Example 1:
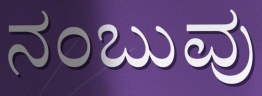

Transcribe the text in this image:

ನಂಬುವು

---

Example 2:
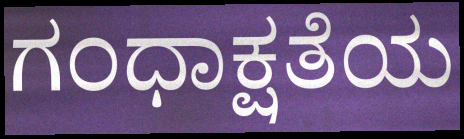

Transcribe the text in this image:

ಗಂಧಾಕ್ಷತೆಯ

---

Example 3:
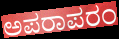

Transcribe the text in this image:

ಅಪರಾಪರಂ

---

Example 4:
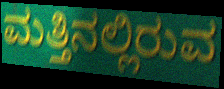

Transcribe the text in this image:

ಮತ್ತಿನಲ್ಲಿರುವ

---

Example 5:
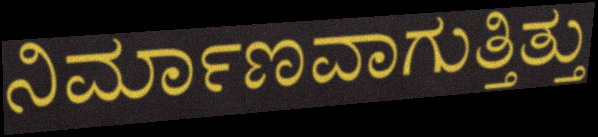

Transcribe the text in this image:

ನಿರ್ಮಾಣವಾಗುತ್ತಿತ್ತು